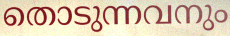
തൊടുന്നവനും